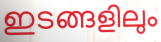
ഇടങ്ങളിലും